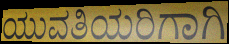
ಯುವತಿಯರಿಗಾಗಿ